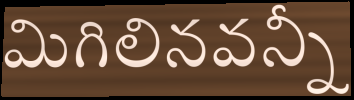
మిగిలినవన్నీ